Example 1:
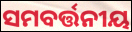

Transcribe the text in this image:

ସମବର୍ତ୍ତନୀୟ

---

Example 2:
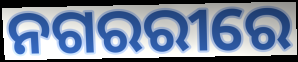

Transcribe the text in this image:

ନଗରରୀରେ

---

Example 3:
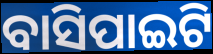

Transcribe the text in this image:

ବାସିପାଇଟି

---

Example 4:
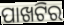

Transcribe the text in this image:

ପାଖଟିର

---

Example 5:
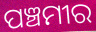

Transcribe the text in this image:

ପଞ୍ଚମୀର